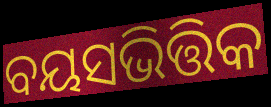
ବୟସଭିତ୍ତିକ